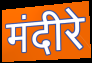
मंदीरे